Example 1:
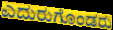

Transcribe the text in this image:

ಎದುರುಗೊಂಡರು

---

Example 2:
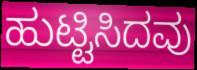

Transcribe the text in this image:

ಹುಟ್ಟಿಸಿದವು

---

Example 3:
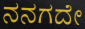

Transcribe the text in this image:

ನನಗದೇ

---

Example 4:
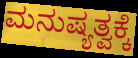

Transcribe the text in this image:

ಮನುಷ್ಯತ್ವಕ್ಕೆ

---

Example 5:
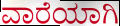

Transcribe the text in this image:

ವಾರೆಯಾಗಿ